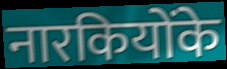
नारकियोंके